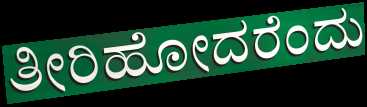
ತೀರಿಹೋದರೆಂದು